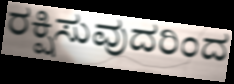
ರಕ್ಷಿಸುವುದರಿಂದ